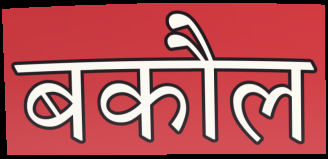
बकौल